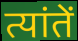
त्यांतें